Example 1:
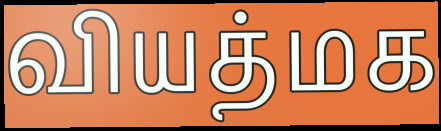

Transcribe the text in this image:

வியத்மக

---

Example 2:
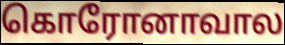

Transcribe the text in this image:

கொரோனாவால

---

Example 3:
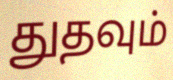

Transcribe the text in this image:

துதவும்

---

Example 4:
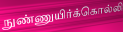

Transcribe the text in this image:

நுண்ணுயிர்க்கொல்லி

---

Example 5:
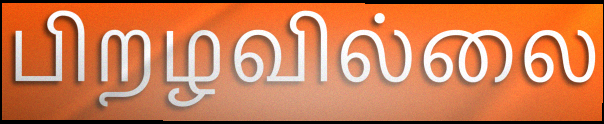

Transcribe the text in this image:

பிறழவில்லை